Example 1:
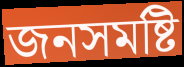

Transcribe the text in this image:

জনসমষ্টি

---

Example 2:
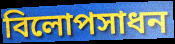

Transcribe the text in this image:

বিলোপসাধন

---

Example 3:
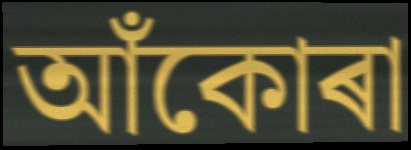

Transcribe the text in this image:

আঁকোৰা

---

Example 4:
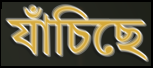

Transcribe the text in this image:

যাঁচিছে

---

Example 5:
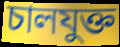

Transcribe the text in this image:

চালযুক্ত